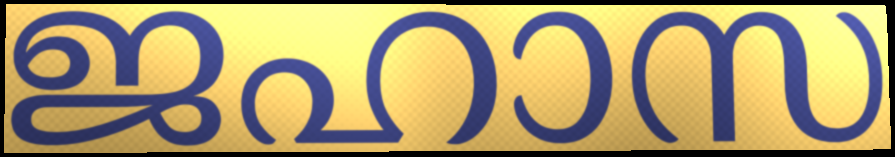
ജഹാസ